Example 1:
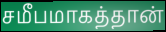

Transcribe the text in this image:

சமீபமாகத்தான்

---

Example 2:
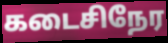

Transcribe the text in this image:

கடைசிநேர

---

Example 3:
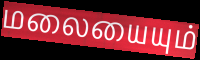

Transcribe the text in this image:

மலையையும்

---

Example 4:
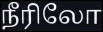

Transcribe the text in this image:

நீரிலோ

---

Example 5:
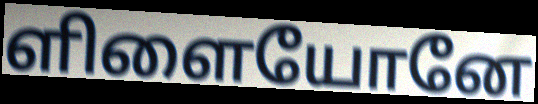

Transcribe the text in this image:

ளிளையோனே